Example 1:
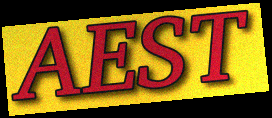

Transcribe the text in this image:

AEST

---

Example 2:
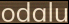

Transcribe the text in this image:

odalu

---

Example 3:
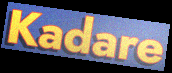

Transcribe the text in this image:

Kadare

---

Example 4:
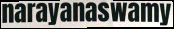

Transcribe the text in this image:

narayanaswamy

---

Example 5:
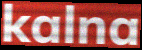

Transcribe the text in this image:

kalna